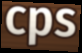
cps